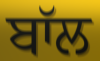
ਬਾੱਲ